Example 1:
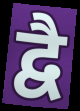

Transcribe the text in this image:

द्वै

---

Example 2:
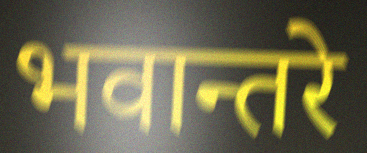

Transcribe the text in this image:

भवान्तरे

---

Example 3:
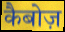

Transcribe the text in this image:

कैबोज़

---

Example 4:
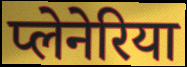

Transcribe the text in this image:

प्लेनेरिया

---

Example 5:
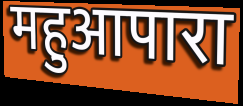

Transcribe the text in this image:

महुआपारा